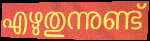
എഴുതുന്നുണ്ട്